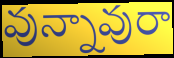
వున్నావురా